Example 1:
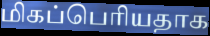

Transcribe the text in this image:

மிகப்பெரியதாக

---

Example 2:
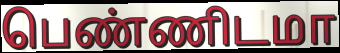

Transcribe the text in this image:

பெண்ணிடமா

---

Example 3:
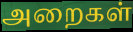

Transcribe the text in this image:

அறைகள்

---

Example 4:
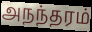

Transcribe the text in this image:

அநந்தரம்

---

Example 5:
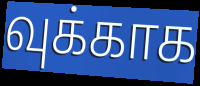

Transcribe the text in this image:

வுக்காக